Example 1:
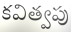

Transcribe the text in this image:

కవిత్వపు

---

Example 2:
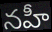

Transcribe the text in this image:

నహీ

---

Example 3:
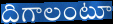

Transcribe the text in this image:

దిగాలంటూ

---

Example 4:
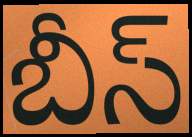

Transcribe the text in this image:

బీస్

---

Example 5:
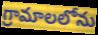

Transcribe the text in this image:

గ్రామాలలోను